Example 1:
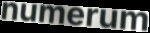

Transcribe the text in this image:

numerum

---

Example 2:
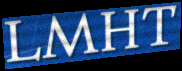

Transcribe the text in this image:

LMHT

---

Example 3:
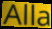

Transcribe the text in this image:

Alla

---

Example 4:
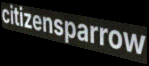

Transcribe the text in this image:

citizensparrow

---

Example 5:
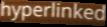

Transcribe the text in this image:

hyperlinked